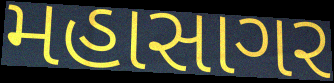
મહાસાગર